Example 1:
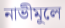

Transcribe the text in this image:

নাভীমূলে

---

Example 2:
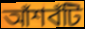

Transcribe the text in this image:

আঁশবঁটি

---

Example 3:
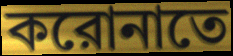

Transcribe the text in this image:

করোনাতে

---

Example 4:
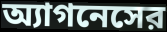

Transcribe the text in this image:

অ্যাগনেসের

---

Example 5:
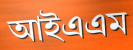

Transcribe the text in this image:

আইএএম